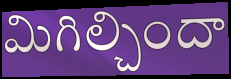
మిగిల్చిందా